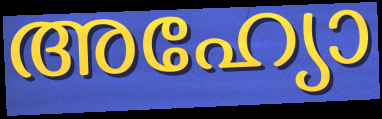
അഹ്യോ